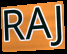
RAJ